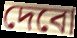
দেবো